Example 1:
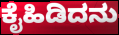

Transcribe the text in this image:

ಕೈಹಿಡಿದನು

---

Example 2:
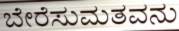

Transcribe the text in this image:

ಬೇರೆಸುಮತವನು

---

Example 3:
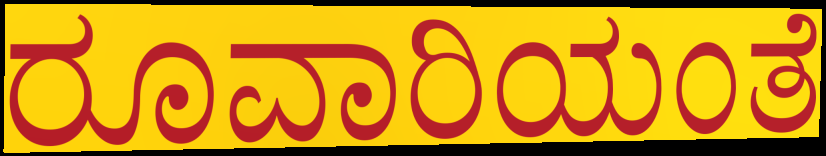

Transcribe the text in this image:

ರೂವಾರಿಯಂತೆ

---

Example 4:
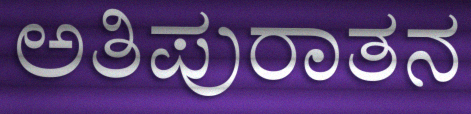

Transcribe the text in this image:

ಅತಿಪುರಾತನ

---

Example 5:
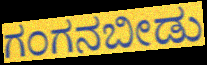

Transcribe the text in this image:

ಗಂಗನಬೀಡು